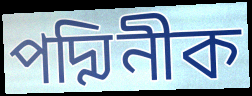
পদ্মিনীক